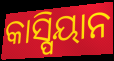
କାସ୍ପିୟାନ